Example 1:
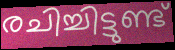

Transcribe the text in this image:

രചിച്ചിട്ടുണ്ട്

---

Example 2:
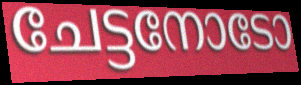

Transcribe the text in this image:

ചേട്ടനോടോ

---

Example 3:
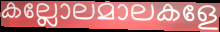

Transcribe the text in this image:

കല്ലോലമാലകളേ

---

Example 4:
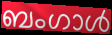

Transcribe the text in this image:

ബംഗാൾ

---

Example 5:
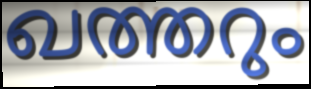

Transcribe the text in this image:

ഖത്തറും